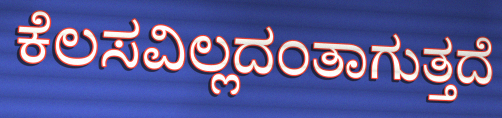
ಕೆಲಸವಿಲ್ಲದಂತಾಗುತ್ತದೆ